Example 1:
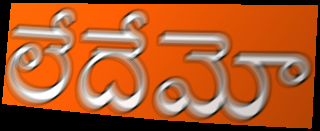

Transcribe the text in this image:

లేదేమో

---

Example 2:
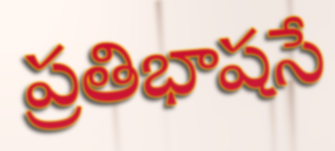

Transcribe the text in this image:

ప్రతిభాషసే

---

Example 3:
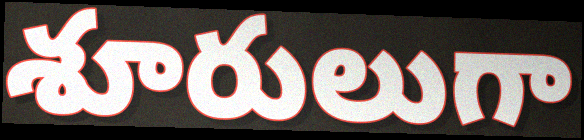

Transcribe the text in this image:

శూరులుగా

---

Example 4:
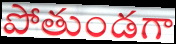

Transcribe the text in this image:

పోతుండగా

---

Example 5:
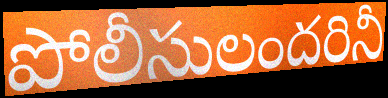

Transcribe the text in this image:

పోలీసులందరినీ